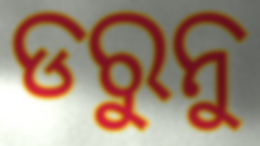
ଡରୁନୁ